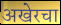
अखेरचा